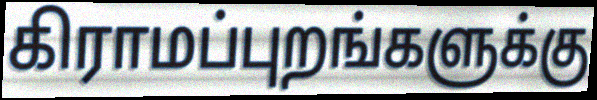
கிராமப்புறங்களுக்கு